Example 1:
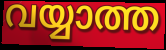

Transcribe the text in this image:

വയ്യാത്ത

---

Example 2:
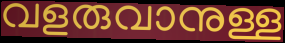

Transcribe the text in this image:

വളരുവാനുള്ള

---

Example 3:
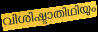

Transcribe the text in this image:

വിശിഷ്ടാതിഥിയും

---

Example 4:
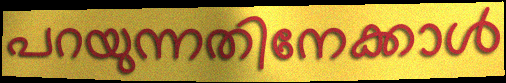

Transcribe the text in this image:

പറയുന്നതിനേക്കാൾ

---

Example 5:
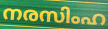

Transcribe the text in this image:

നരസിംഹ